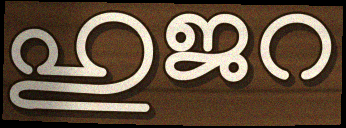
ഹുജറ